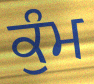
ਕੁੰਮ